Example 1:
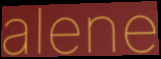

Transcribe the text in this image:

alene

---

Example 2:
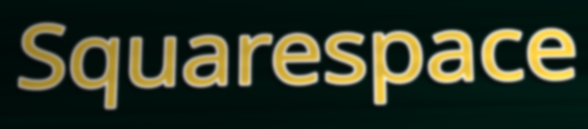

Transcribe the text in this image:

Squarespace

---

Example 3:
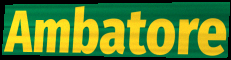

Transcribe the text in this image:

Ambatore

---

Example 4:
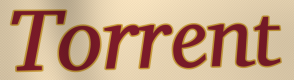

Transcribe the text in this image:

Torrent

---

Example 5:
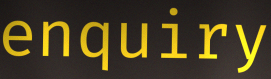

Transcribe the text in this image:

enquiry